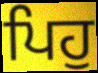
ਪਿਹੁ